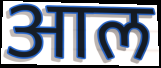
आल